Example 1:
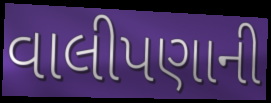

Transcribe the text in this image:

વાલીપણાની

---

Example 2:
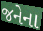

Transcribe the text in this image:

જનેના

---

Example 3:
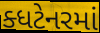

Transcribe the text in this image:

ક્ધટેનરમાં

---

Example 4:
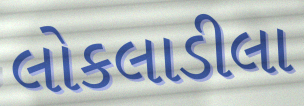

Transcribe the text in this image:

લોકલાડીલા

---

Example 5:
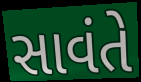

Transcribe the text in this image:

સાવંતે